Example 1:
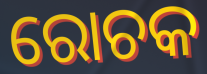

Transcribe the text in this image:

ରୋଚକ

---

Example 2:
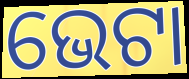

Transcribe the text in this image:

ଭେଟା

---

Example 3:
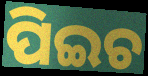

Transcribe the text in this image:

ପିଇଚ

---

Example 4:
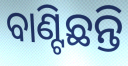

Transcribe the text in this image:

ବାଣ୍ଟିଛନ୍ତି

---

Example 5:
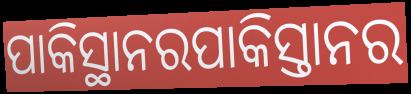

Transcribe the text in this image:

ପାକିସ୍ଥାନରପାକିସ୍ତାନର